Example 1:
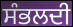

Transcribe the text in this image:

ਸੰਭਲਦੀ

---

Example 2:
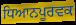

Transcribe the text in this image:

ਧਿਆਨਪੂਰਵਕ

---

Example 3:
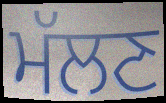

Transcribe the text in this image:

ਮੱਲਣ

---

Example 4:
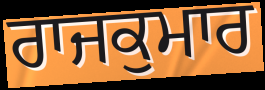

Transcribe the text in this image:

ਰਾਜਕੁਮਾਰ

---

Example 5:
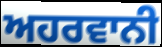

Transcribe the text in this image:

ਅਹਰਵਾਨੀ